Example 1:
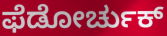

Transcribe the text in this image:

ಫೆಡೋರ್ಚುಕ್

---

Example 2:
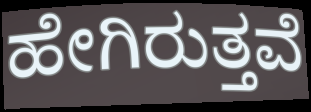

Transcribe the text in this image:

ಹೇಗಿರುತ್ತವೆ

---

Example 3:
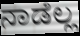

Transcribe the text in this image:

ನಾಡೆಲ್ಲ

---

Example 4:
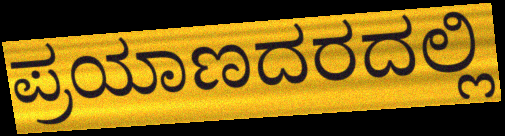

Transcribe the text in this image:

ಪ್ರಯಾಣದರದಲ್ಲಿ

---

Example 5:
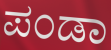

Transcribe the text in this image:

ಪಂಡಾ